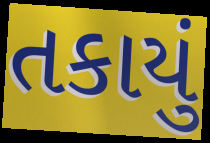
તકાયું